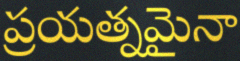
ప్రయత్నమైనా